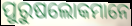
ପୁରୁଷଲୋକମାନେ